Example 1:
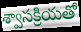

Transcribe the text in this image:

శ్వాసక్రియతో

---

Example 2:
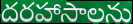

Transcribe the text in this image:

దరహాసాలను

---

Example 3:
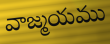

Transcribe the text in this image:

వాజ్మయము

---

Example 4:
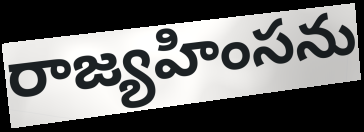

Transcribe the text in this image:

రాజ్యహింసను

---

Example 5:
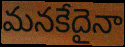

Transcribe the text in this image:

మనకేదైనా